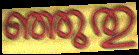
ഞ്ഞുതു